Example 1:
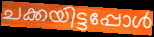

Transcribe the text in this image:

ചക്കയിട്ടപ്പോൾ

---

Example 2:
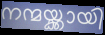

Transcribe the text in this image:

നന്മയ്ക്കായി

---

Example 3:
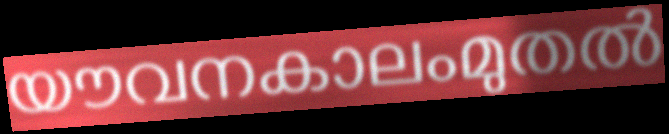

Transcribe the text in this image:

യൗവനകാലംമുതൽ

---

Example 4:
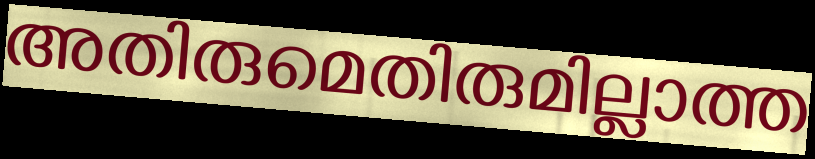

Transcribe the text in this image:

അതിരുമെതിരുമില്ലാത്ത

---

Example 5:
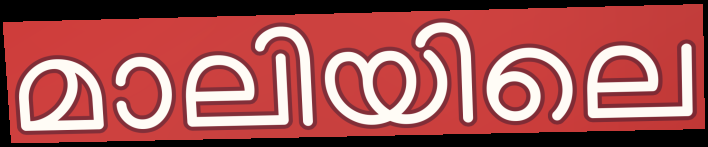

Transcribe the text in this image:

മാലിയിലെ